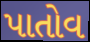
પાતોવ